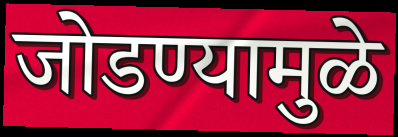
जोडण्यामुळे